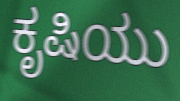
ಕೃಷಿಯು